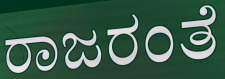
ರಾಜರಂತೆ